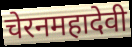
चेरनमहादेवी